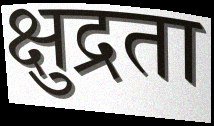
क्षुद्रता